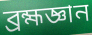
ব্রহ্মজ্ঞান